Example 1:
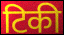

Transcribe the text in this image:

टिकी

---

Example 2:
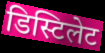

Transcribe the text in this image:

डिस्टिलेट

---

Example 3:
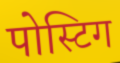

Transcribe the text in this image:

पोस्टिग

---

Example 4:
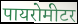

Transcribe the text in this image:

पायरोमीटर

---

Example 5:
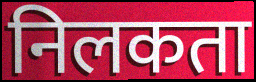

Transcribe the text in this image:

निलकता